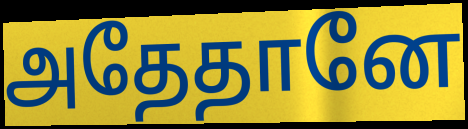
அதேதானே